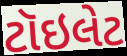
ટૉઇલેટ